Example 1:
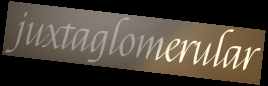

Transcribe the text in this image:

juxtaglomerular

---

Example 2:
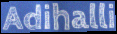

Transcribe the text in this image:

Adihalli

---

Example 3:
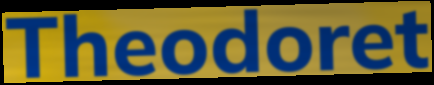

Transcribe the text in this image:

Theodoret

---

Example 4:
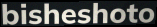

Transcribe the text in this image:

bisheshoto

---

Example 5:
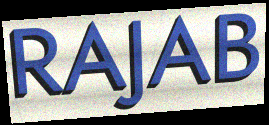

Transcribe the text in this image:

RAJAB